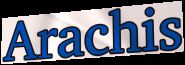
Arachis